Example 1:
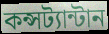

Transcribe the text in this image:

কন্সট্যান্টান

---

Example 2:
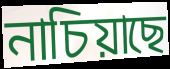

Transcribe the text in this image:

নাচিয়াছে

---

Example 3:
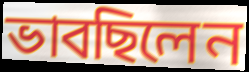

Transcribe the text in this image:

ভাবছিলেন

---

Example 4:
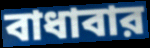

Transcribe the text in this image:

বাধাবার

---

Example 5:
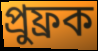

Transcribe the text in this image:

প্রুফ্রক